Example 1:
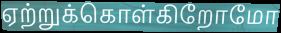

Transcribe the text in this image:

ஏற்றுக்கொள்கிறோமோ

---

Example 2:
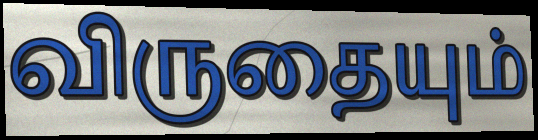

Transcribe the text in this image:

விருதையும்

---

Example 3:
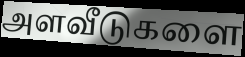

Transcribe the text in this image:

அளவீடுகளை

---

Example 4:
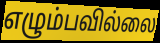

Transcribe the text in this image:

எழும்பவில்லை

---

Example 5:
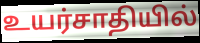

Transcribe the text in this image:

உயர்சாதியில்